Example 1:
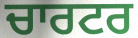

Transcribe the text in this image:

ਚਾਰਟਰ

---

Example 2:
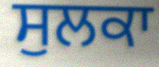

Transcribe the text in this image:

ਸੁਲਕਾ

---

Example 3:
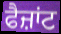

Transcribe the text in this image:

ਫੈਜ਼ਾਂਟ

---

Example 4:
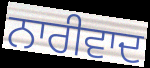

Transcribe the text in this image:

ਨਾਰੀਵਾਦ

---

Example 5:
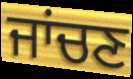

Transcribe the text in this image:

ਜਾਂਚਣ